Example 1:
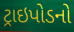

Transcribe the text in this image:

ટ્રાઇપોડનો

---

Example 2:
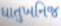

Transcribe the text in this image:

ધાતુખનિજ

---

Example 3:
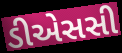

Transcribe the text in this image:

ડીએસસી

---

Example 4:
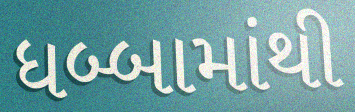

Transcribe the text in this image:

ધબ્બામાંથી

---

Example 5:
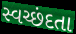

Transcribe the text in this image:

સ્વચ્છંદતા